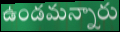
ఉండమన్నారు